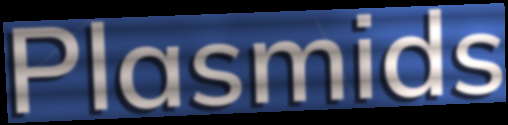
Plasmids